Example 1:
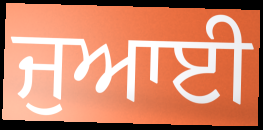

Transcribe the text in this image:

ਜੁਆਈ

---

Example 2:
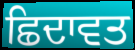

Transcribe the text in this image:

ਛਿਦਾਵਤ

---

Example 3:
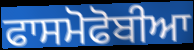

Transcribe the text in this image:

ਫਾਸਮੋਫੋਬੀਆ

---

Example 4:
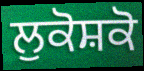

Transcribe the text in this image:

ਲੁਕੋਸ਼ਕੋ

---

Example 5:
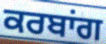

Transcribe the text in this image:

ਕਰਬਾਂਗ